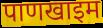
पाणखाइम